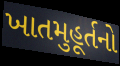
ખાતમુહૂર્તનો